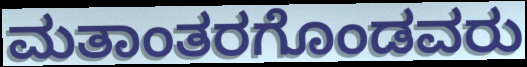
ಮತಾಂತರಗೊಂಡವರು